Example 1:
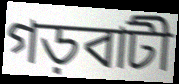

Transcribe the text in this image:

গড়বাটী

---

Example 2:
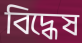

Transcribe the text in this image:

বিদ্ধেষ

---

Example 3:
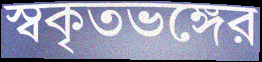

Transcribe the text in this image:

স্বকৃতভঙ্গের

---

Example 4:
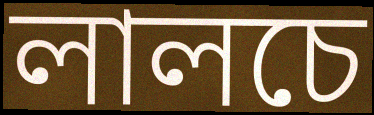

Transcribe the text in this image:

লালচে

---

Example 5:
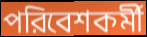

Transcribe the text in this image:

পরিবেশকর্মী